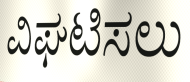
ವಿಘಟಿಸಲು